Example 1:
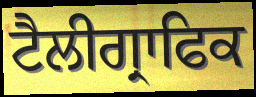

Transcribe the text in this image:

ਟੈਲੀਗ੍ਰਾਫਿਕ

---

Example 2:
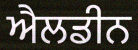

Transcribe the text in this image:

ਐਲਡੀਨ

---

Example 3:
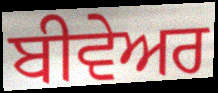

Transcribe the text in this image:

ਬੀਵੇਅਰ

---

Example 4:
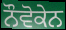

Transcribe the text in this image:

ਨੌਵੋਕੇਨ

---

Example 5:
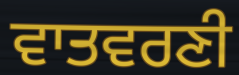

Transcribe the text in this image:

ਵਾਤਵਰਣੀ